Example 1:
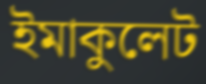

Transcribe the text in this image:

ইমাকুলেট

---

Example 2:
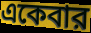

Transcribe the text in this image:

একেবার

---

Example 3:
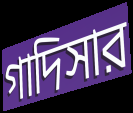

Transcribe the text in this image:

গাদিসার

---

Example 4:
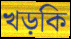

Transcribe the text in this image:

খড়কি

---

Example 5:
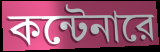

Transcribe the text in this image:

কন্টেনারে